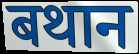
बथान